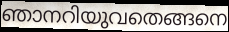
ഞാനറിയുവതെങ്ങനെ